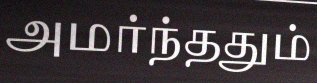
அமர்ந்ததும்